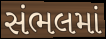
સંભલમાં